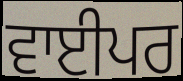
ਵਾਈਪਰ